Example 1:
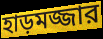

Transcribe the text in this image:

হাড়মজ্জার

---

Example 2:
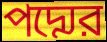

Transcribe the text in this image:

পদ্মের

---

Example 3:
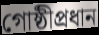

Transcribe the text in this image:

গোষ্ঠীপ্রধান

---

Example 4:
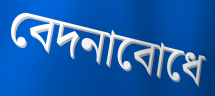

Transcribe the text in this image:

বেদনাবোধে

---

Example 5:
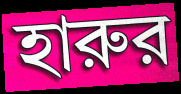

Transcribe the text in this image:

হারুর